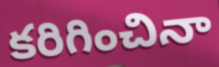
కరిగించినా